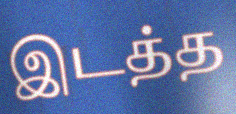
இடத்த